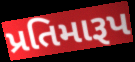
પ્રતિમારૂપ